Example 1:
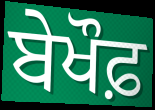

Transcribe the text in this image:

ਬੇਖੌਫ਼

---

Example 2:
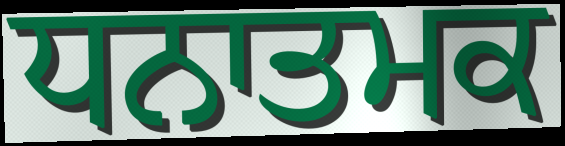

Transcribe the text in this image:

ਧਨਾਤਮਕ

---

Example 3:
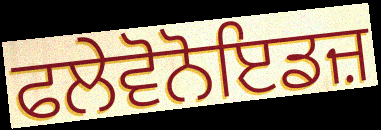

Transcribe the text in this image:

ਫਲੇਵੋਨੋਇਡਜ਼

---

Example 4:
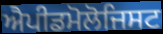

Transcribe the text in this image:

ਐਪੀਡਮੋਲੋਜਿਸਟ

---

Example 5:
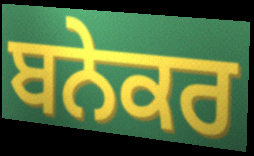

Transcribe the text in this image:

ਬਨੇਕਰ